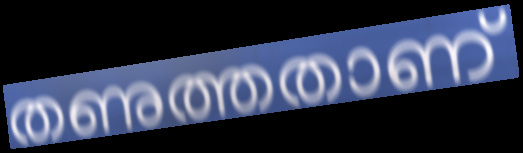
തണുത്തതാണ്